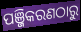
ପଞ୍ଜିକରଣଠାରୁ